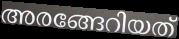
അരങ്ങേറിയത്